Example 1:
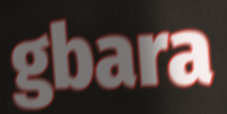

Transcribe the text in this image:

gbara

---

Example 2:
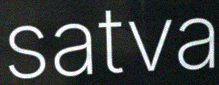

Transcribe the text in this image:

satva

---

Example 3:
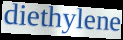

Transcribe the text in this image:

diethylene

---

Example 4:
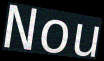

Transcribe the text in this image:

Nou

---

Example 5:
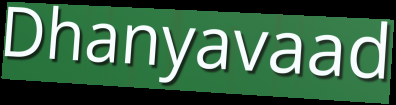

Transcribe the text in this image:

Dhanyavaad